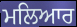
ਮਲਿਆਰ